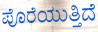
ಪೊರೆಯುತ್ತಿದೆ